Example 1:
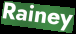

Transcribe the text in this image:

Rainey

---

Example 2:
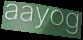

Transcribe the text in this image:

aayog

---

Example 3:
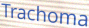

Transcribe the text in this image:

Trachoma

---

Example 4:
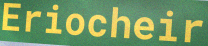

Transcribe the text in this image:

Eriocheir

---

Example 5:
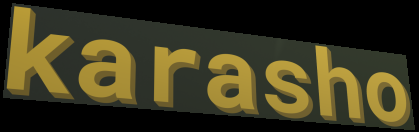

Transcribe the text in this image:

karasho